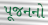
પૂજનનો